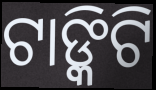
ଟାଙ୍କିଟି